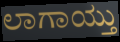
ಲಾಗಾಯ್ತು